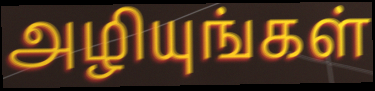
அழியுங்கள்